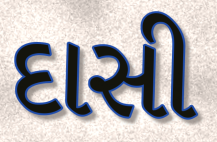
દાસી